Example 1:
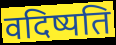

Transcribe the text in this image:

वदिष्यति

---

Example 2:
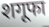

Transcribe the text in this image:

शगूफा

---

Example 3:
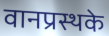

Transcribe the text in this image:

वानप्रस्थके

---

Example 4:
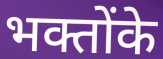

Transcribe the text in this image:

भक्तोंके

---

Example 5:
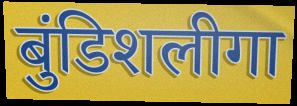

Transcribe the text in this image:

बुंडिशलीगा